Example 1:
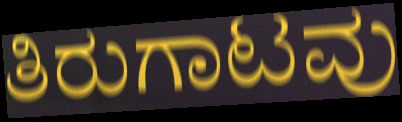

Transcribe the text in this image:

ತಿರುಗಾಟವು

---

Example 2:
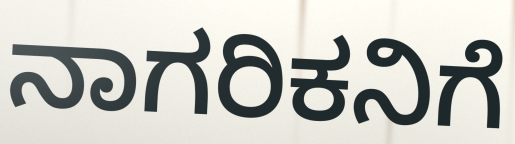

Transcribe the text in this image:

ನಾಗರಿಕನಿಗೆ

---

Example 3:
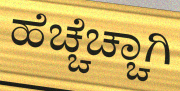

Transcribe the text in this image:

ಹೆಚ್ಚೆಚ್ಚಾಗಿ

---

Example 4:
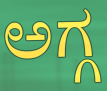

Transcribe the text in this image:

ಅಗ್ಗ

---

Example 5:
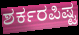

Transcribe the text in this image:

ಶರ್ಕರಪಿಷ್ಟ